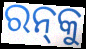
ରନ୍‌କୁ